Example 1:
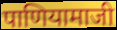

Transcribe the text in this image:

पाणियामाजी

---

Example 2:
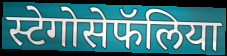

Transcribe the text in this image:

स्टेगोसेफॅलिया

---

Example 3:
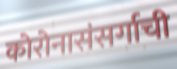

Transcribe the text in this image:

कोरोनासंसर्गाची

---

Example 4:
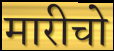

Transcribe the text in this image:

मारीचो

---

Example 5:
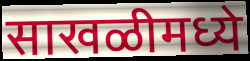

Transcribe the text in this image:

साखळीमध्ये